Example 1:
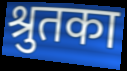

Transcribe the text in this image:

श्रुतका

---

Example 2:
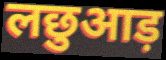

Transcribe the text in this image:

लछुआड़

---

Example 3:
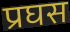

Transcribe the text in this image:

प्रघस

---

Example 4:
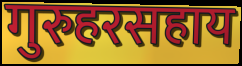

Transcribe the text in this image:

गुरुहरसहाय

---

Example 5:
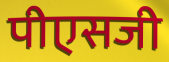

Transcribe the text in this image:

पीएसजी